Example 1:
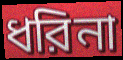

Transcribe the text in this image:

ধরিনা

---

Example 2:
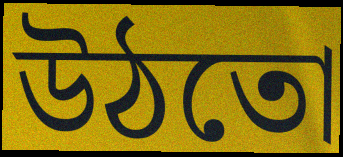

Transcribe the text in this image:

উঠতো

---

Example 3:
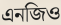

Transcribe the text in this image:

এনজিও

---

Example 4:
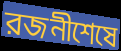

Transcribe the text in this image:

রজনীশেষে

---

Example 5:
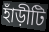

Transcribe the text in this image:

হাঁড়ীটি